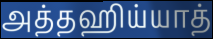
அத்தஹிய்யாத்